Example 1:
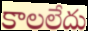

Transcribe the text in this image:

కాలలేదు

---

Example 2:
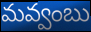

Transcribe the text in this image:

మవ్వంబు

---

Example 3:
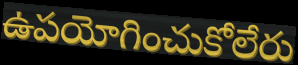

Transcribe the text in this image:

ఉపయోగించుకోలేరు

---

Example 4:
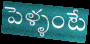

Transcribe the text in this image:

పెళ్ళంటే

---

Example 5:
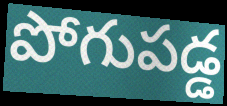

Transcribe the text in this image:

పోగుపడ్డ